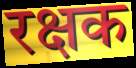
रक्षक